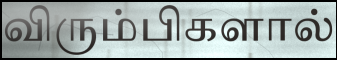
விரும்பிகளால்